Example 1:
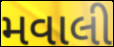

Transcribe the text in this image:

મવાલી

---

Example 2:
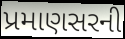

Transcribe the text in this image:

પ્રમાણસરની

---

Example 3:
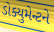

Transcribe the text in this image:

ડોક્યુમેન્ટને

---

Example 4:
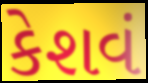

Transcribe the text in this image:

કેશવં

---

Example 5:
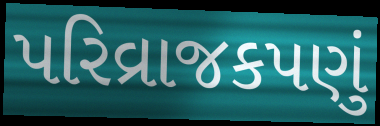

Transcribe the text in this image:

પરિવ્રાજકપણું